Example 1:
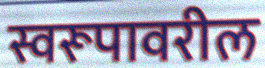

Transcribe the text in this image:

स्वरूपावरील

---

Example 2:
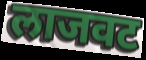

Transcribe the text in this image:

लाजवट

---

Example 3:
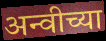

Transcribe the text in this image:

अन्वीच्या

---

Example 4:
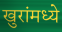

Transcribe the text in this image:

खुरांमध्ये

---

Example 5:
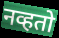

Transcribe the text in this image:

नव्हतो